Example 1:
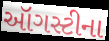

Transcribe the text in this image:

ઑગસ્ટીના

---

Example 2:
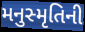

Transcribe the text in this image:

મનુસ્મૃતિની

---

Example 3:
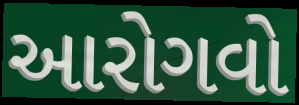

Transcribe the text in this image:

આરોગવો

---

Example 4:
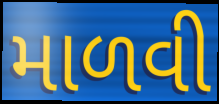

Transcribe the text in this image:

માળવી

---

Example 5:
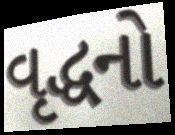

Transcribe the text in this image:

વૃદ્ધનો